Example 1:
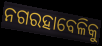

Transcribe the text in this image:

ନଗରହାବେଳିକୁ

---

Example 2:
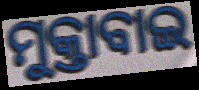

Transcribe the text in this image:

ମୁକ୍ତାବାଇ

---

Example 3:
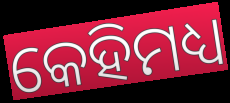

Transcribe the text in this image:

କେହିମଧ୍ୟ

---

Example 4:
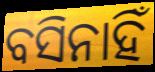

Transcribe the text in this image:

ବସିନାହିଁ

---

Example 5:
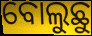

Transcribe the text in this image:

ବୋଲୁଛୁ